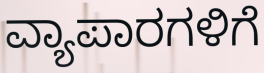
ವ್ಯಾಪಾರಗಳಿಗೆ